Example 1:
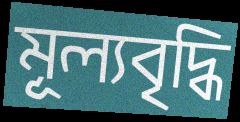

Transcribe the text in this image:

মূল্যবৃদ্ধি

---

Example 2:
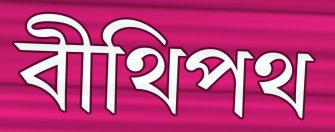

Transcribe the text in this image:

বীথিপথ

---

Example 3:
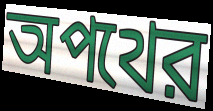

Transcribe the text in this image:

অপথের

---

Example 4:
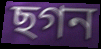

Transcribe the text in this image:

ছগন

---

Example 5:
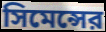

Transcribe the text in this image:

সিমেন্সের